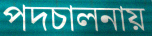
পদচালনায়